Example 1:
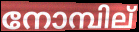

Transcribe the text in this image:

നോമ്പില്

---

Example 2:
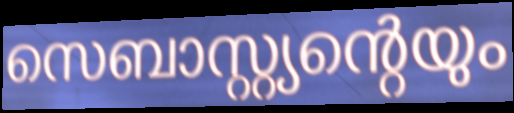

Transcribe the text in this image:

സെബാസ്റ്റ്യന്റെയും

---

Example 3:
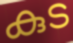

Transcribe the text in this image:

കുട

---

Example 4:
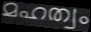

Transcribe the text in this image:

മഹത്വം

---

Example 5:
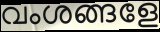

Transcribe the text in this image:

വംശങ്ങളേ